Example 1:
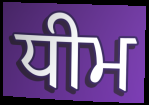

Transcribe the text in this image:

ਧੀਮ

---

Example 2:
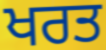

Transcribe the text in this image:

ਖਰਤ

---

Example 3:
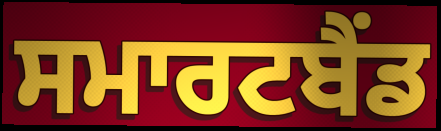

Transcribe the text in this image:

ਸਮਾਰਟਬੈਂਡ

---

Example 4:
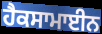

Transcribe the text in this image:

ਹੈਕਸਾਮਾਈਨ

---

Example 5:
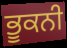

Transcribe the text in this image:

ਭੂਕਨੀ